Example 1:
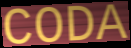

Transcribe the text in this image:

CODA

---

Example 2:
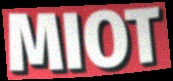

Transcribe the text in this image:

MIOT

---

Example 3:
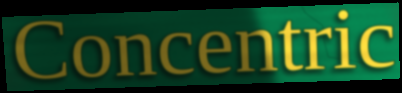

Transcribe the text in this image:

Concentric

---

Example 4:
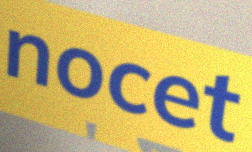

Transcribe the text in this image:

nocet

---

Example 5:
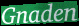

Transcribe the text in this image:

Gnaden